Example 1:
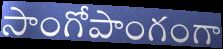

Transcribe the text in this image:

సాంగోపాంగంగా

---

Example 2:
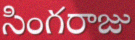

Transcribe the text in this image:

సింగరాజు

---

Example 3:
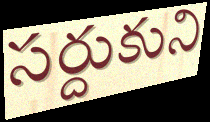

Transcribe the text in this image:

సర్దుకుని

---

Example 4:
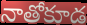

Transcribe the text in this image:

నాతోకూడ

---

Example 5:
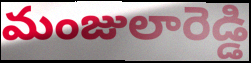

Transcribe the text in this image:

మంజులారెడ్డి